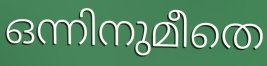
ഒന്നിനുമീതെ